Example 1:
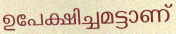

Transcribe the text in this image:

ഉപേക്ഷിച്ചമട്ടാണ്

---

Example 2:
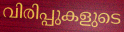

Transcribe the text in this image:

വിരിപ്പുകളുടെ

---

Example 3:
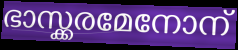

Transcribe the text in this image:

ഭാസ്ക്കരമേനോന്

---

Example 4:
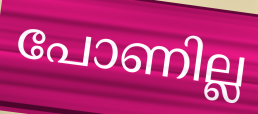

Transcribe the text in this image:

പോണില്ല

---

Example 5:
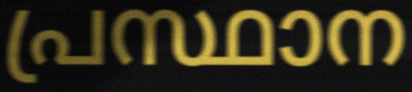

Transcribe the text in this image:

പ്രസ്ഥാന